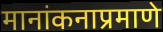
मानांकनाप्रमाणे